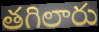
తగిలారు